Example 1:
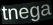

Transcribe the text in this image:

tnega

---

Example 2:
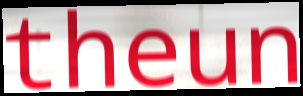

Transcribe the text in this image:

theun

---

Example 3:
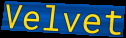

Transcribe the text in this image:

Velvet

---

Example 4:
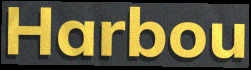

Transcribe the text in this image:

Harbou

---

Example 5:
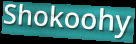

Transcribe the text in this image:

Shokoohy